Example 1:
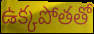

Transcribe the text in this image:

ఉక్కపోతతో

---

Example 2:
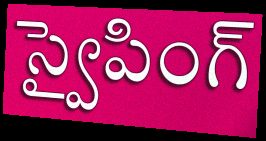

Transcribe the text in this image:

స్వైపింగ్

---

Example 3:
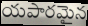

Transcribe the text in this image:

యపారమైన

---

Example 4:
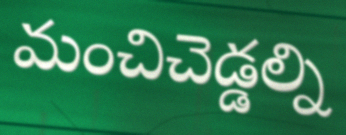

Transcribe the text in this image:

మంచిచెడ్డల్ని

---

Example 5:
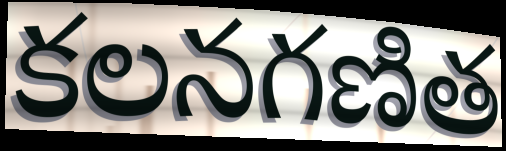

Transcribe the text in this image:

కలనగణిత